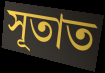
সূতাত